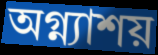
অগ্ন্যাশয়